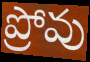
ప్రోవు